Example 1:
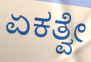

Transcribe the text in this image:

ಏಕತ್ವೇ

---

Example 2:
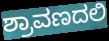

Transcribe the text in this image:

ಶ್ರಾವಣದಲಿ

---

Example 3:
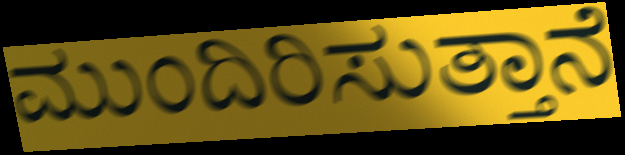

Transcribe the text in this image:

ಮುಂದಿರಿಸುತ್ತಾನೆ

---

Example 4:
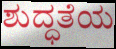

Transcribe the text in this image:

ಶುದ್ಧತೆಯ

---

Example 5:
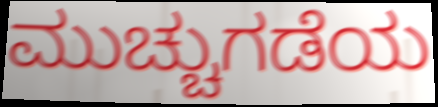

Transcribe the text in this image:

ಮುಚ್ಚುಗಡೆಯ